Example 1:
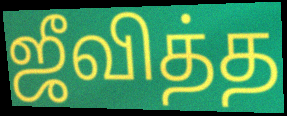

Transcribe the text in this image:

ஜீவித்த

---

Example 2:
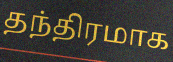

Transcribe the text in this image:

தந்திரமாக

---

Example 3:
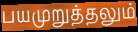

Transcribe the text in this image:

பயமுறுத்தலும்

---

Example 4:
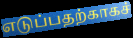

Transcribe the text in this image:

எடுப்பதற்காகச்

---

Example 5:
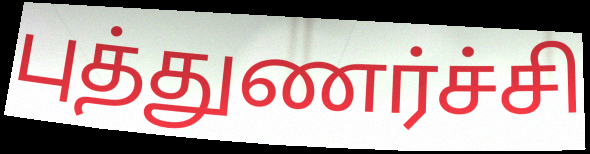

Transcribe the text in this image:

புத்துணர்ச்சி